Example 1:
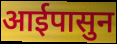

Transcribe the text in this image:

आईपासुन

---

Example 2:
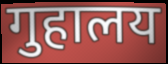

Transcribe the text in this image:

गुहालय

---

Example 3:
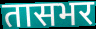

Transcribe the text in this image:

तासभर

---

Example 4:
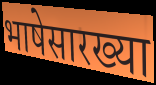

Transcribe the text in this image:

भाषेसारख्या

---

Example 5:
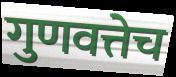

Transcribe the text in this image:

गुणवत्तेच